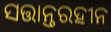
ସତ୍ତାନ୍ତରହୀନ